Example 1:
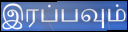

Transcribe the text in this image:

இரப்பவும்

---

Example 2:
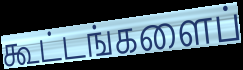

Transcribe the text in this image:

கூட்டங்களைப்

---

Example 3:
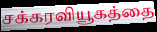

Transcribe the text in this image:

சக்கரவியூகத்தை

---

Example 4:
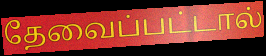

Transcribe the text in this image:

தேவைப்பட்டால்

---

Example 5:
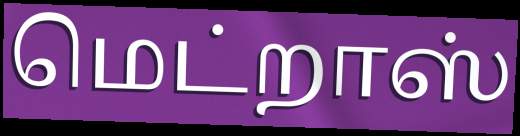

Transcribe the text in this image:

மெட்றாஸ்